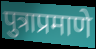
पुत्राप्रमाणे